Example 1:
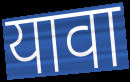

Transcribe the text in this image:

यावा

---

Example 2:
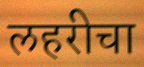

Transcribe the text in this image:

लहरीचा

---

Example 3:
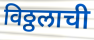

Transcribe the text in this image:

विठ्ठलाची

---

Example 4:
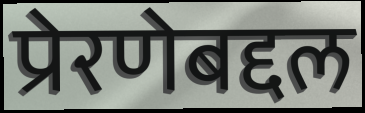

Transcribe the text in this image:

प्रेरणेबद्दल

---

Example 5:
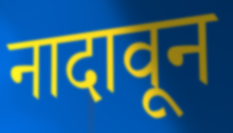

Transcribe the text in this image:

नादावून